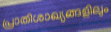
പ്രാതിശാഖ്യങ്ങളിലും